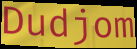
Dudjom